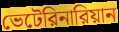
ভেটেরিনারিয়ান